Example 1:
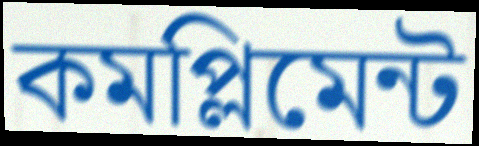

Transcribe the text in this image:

কমপ্লিমেন্ট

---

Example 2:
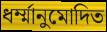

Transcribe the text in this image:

ধর্ম্মানুমোদিত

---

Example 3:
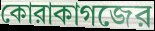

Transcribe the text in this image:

কোরাকাগজের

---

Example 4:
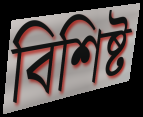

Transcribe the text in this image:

বিশিষ্ট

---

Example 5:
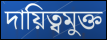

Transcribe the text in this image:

দায়িত্বমুক্ত